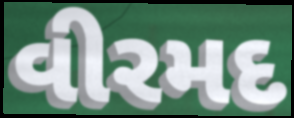
વીરમદ